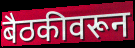
बैठकीवरून